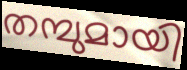
തമ്പുമായി